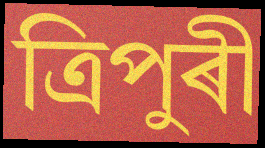
ত্ৰিপুৰী